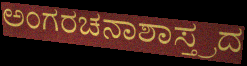
ಅಂಗರಚನಾಶಾಸ್ತ್ರದ